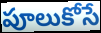
పూలుకోసే